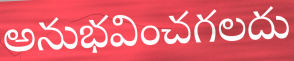
అనుభవించగలదు